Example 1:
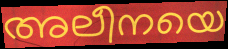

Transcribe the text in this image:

അലീനയെ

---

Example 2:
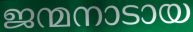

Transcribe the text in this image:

ജന്മനാടായ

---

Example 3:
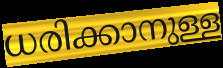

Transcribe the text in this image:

ധരിക്കാനുള്ള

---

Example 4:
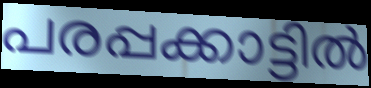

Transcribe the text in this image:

പരപ്പക്കാട്ടിൽ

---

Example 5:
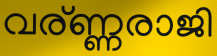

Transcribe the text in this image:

വര്ണ്ണരാജി